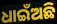
ଧାଇଁଅଛି